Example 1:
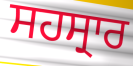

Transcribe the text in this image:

ਸਹਸ੍ਰਾਰ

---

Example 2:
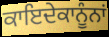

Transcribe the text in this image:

ਕਾਇਦੇਕਾਨੂੰਨਾਂ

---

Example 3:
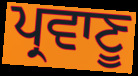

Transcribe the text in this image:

ਪ੍ਰਵਾਣੂ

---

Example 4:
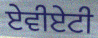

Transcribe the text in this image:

ਏਵੀਏਟੀ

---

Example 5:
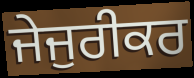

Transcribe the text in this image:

ਜੇਜੁਰੀਕਰ